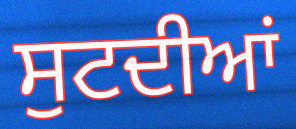
ਸੁਟਦੀਆਂ